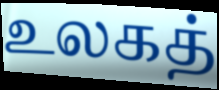
உலகத்